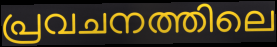
പ്രവചനത്തിലെ